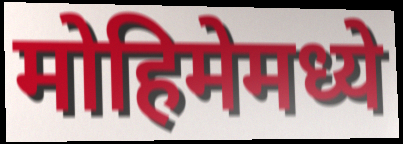
मोहिमेमध्ये